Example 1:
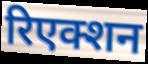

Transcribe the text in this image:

रिएक्शन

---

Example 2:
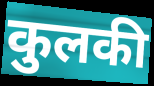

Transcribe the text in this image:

कुलकी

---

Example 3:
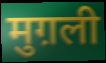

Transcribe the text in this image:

मुग़ली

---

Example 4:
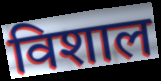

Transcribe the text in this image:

विशाल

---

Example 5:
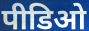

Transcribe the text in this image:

पीडिओ